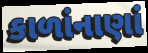
કાળાંનાણાં